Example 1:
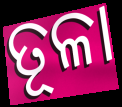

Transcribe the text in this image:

ତୂଳା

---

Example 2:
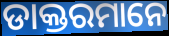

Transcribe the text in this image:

ଡାକ୍ତରମାନେ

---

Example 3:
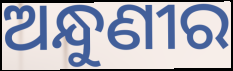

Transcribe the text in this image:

ଅନ୍ଧୁଣୀର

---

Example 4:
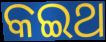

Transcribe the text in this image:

କଇଥ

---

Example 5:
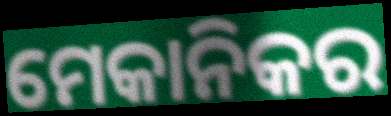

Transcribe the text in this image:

ମେକାନିକର